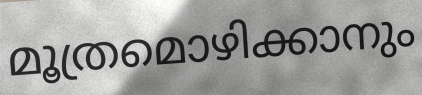
മൂത്രമൊഴിക്കാനും